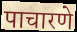
पाचारणे